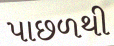
પાછળથી